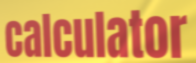
calculator